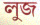
লুজ